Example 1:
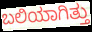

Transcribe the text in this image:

ಬಲಿಯಾಗಿತ್ತು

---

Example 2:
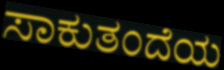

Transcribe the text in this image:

ಸಾಕುತಂದೆಯ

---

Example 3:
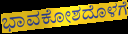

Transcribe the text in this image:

ಭಾವಕೋಶದೊಳಗೆ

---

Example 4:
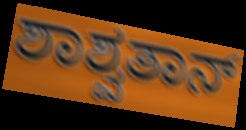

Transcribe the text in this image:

ಶಾಶ್ವತಾನ್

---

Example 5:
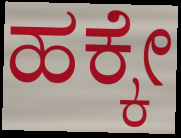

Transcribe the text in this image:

ಹಕ್ಕೇ